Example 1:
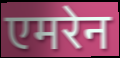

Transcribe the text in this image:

एमरेन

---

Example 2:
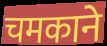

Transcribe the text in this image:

चमकाने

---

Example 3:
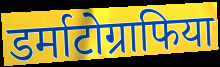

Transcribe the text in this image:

डर्माटोग्राफिया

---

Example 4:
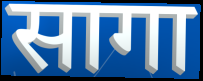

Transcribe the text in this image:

सागा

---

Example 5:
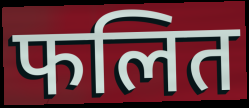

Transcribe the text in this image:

फलित